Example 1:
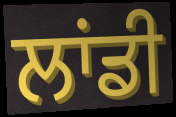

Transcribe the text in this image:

ਲਾਂਡੀ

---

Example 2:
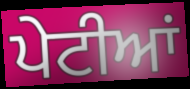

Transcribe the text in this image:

ਪੇਟੀਆਂ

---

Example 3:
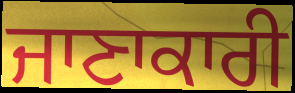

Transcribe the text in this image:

ਜਾਣਾਕਾਰੀ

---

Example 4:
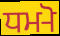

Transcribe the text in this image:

ਧਮ੍ਮੋ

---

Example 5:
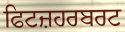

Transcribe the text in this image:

ਫਿਟਜ਼ਹਰਬਰਟ